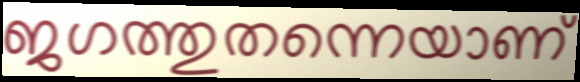
ജഗത്തുതന്നെയാണ്